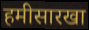
हमीसारखा